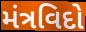
મંત્રવિદો